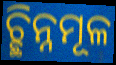
ଚ୍ଛିନ୍ନମୂଳ